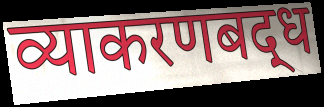
व्याकरणबद्ध